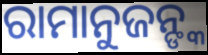
ରାମାନୁଜନ୍ଙ୍କ